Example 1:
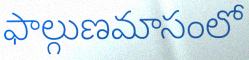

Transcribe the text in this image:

ఫాల్గుణమాసంలో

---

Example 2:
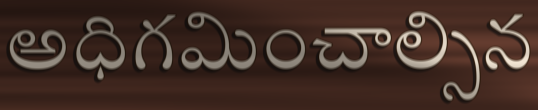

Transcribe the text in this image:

అధిగమించాల్సిన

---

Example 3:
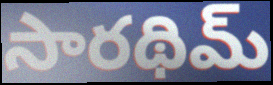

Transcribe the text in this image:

సారథిమ్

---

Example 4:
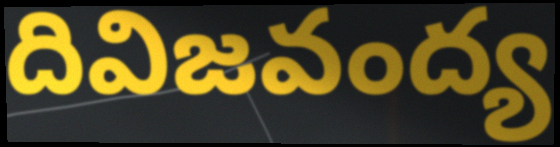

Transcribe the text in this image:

దివిజవంద్య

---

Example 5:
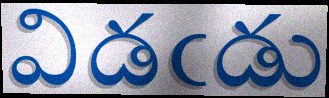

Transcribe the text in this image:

విడఁడు